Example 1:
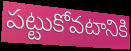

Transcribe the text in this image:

పట్టుకోవటానికి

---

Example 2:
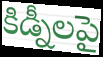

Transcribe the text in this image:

కిడ్నీలపై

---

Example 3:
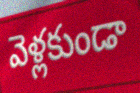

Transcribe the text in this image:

వెళ్లకుండా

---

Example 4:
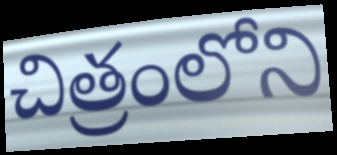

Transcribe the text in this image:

చిత్రంలోని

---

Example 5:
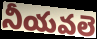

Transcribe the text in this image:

నీయవలె